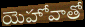
యెహోవాతో